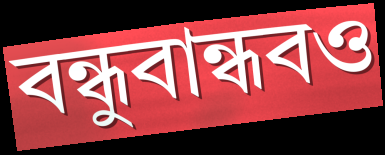
বন্ধুবান্ধবও